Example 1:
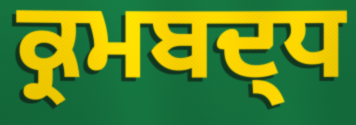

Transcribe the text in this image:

ਕ੍ਰਮਬਦ੍ਧ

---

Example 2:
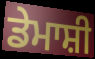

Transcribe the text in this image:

ਡੇਮਾਸ਼ੀ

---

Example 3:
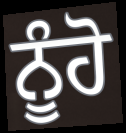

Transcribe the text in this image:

ਨੂੰਹੋ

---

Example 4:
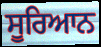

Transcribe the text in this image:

ਸੂਰਿਆਨ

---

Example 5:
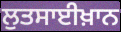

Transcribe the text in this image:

ਲੁਤਸਾਈਖ਼ਾਨ